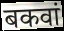
बकवां